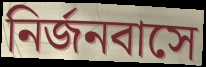
নির্জনবাসে